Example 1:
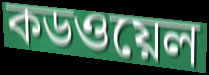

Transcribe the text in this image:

কডওয়েল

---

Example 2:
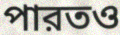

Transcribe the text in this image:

পারতও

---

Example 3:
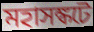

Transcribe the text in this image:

মহাসঙ্কটে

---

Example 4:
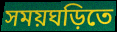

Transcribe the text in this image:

সময়ঘড়িতে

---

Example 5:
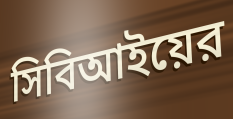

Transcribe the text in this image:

সিবিআইয়ের